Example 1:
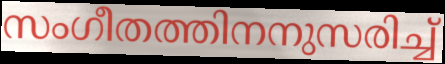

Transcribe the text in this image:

സംഗീതത്തിനനുസരിച്ച്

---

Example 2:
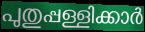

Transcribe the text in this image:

പുതുപ്പള്ളിക്കാർ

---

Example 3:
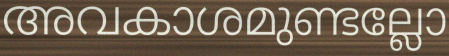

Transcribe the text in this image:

അവകാശമുണ്ടല്ലോ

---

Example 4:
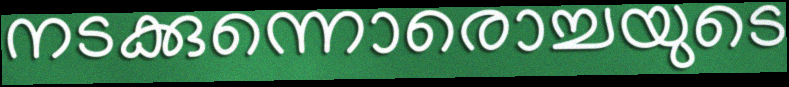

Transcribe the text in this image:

നടക്കുന്നൊരൊച്ചയുടെ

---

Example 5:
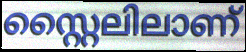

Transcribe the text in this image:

സ്റ്റൈലിലാണ്